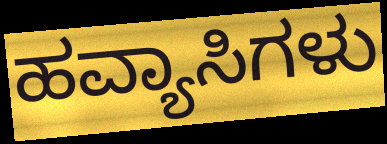
ಹವ್ಯಾಸಿಗಳು